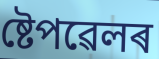
ষ্টেপৱেলৰ